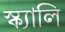
স্ক্যালি